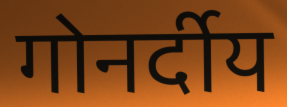
गोनर्दीय